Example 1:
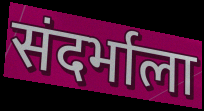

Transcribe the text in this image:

संदर्भाला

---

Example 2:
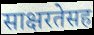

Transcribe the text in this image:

साक्षरतेसह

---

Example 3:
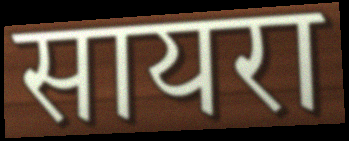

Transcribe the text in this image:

सायरा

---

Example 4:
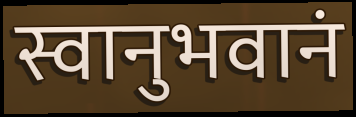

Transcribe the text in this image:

स्वानुभवानं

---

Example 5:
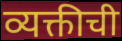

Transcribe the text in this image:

व्यक्तीची